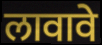
लावावे